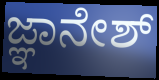
ಜ್ಞಾನೇಶ್